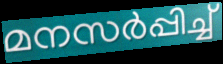
മനസർപ്പിച്ച്